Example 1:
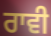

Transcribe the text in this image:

ਰਾਵੀ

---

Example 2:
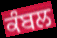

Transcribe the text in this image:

ਕੰਬਲ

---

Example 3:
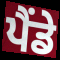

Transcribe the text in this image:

ਪੈਂਡੇ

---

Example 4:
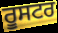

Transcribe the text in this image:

ਰੂਸਟਰ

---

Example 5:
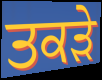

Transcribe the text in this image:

ਤਕੜੇ